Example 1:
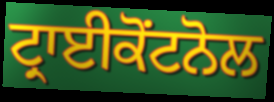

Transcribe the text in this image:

ਟ੍ਰਾਈਕੋਂਟਨੋਲ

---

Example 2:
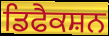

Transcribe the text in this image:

ਡਿਫੈਕਸ਼ਨ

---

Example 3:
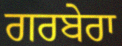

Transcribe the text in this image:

ਗਰਬੇਰਾ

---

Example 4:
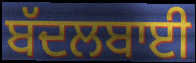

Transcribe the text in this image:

ਬੱਦਲਬਾਈ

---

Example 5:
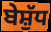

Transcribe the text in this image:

ਬੇਸ਼ੁੱਧ